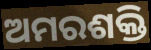
ଅମରଶକ୍ତି